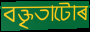
বক্তৃতাটোৰ